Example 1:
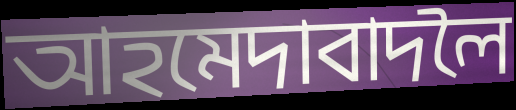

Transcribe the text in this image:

আহমেদাবাদলৈ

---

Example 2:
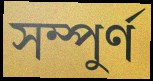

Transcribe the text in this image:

সম্পুৰ্ণ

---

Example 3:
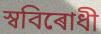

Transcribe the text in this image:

স্ববিৰোধী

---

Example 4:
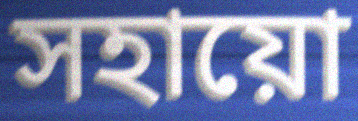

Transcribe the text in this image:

সহায়ো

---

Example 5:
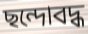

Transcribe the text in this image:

ছন্দোবদ্ধ